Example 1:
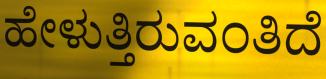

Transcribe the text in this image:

ಹೇಳುತ್ತಿರುವಂತಿದೆ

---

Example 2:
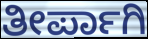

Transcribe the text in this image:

ತೀರ್ಪಾಗಿ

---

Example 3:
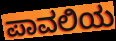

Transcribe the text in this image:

ಪಾವಲಿಯ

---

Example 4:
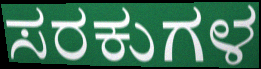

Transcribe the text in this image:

ಸರಕುಗಳ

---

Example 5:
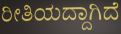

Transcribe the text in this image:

ರೀತಿಯದ್ದಾಗಿದೆ